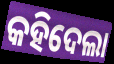
କହିଦେଲା